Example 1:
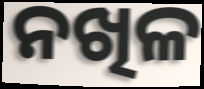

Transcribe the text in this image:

ନଖିଳ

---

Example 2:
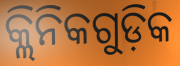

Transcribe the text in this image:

କ୍ଲିନିକଗୁଡ଼ିକ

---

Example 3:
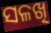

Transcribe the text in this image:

ସଳଖି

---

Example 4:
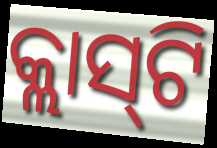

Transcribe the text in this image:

କ୍ଲାସ୍‍ଟି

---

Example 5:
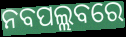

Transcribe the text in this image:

ନବପଲ୍ଲବରେ